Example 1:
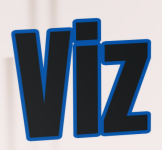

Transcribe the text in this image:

Viz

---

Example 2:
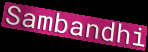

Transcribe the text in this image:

Sambandhi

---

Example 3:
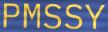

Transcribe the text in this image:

PMSSY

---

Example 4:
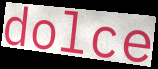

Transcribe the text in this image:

dolce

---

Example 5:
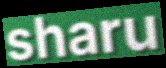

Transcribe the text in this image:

sharu